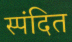
स्पंदित